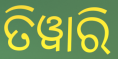
ତିୱାରି